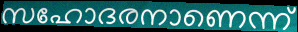
സഹോദരനാണെന്ന്